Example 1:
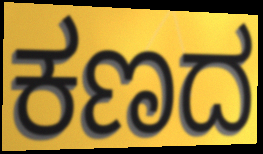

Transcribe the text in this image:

ಕಣದ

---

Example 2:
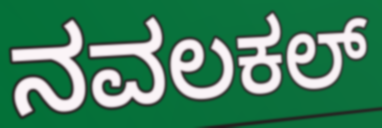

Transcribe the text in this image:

ನವಲಕಲ್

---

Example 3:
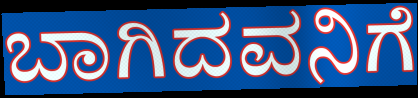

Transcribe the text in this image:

ಬಾಗಿದವನಿಗೆ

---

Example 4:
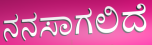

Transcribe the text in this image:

ನನಸಾಗಲಿದೆ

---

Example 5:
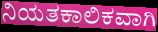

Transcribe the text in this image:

ನಿಯತಕಾಲಿಕವಾಗಿ